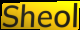
Sheol